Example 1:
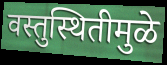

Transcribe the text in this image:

वस्तुस्थितीमुळे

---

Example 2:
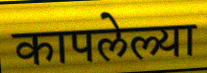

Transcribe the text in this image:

कापलेल्या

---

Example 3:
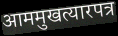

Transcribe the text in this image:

आममुखत्यारपत्र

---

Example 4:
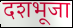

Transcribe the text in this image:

दशभूजा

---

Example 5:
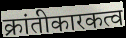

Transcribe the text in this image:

क्रांतीकारकत्व